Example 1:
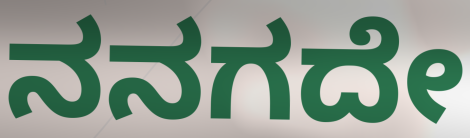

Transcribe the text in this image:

ನನಗದೇ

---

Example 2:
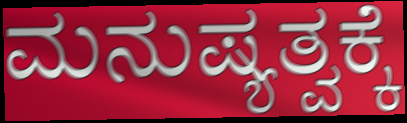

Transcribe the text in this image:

ಮನುಷ್ಯತ್ವಕ್ಕೆ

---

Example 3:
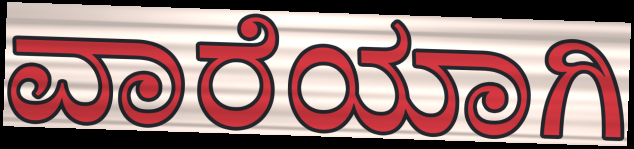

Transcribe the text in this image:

ವಾರೆಯಾಗಿ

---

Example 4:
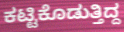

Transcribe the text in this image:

ಕಟ್ಟಿಕೊಡುತ್ತಿದ್ದ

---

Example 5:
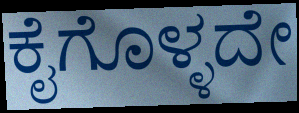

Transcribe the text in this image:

ಕೈಗೊಳ್ಳದೇ